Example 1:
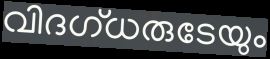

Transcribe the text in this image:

വിദഗ്ധരുടേയും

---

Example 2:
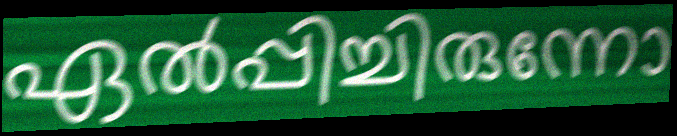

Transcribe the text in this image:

ഏൽപ്പിച്ചിരുന്നോ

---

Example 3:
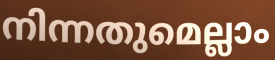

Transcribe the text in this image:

നിന്നതുമെല്ലാം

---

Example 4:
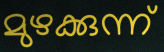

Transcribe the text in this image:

മുഴക്കുന്ന്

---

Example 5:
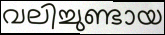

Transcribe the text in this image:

വലിച്ചുണ്ടായ